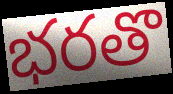
భరతొ